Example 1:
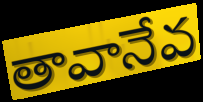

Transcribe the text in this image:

తావానేవ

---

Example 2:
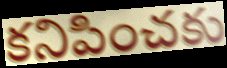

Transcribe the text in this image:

కనిపించకు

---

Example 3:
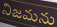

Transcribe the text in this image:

నిజమను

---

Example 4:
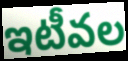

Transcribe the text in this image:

ఇటీవల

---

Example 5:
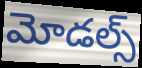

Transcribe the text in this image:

మోడల్స్